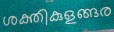
ശക്തികുളങ്ങര